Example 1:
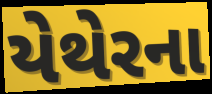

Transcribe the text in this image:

યેથેરના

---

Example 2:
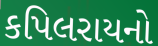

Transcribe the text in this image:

કપિલરાયનો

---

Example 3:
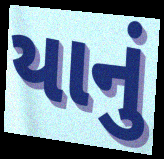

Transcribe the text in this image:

યાનું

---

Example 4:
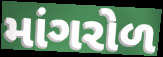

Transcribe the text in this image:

માંગરોળ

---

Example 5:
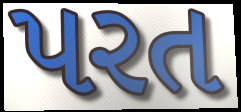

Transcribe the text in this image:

પરત